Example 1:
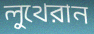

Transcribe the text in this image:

লুথেরান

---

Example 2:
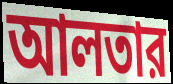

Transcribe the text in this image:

আলতার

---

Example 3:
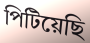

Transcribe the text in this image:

পিটিয়েছি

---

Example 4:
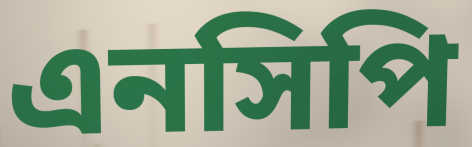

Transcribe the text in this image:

এনসিপি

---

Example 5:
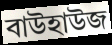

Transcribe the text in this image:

বাউহাউজ